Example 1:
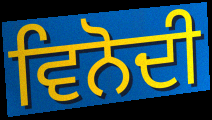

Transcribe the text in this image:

ਵਿਨੋਦੀ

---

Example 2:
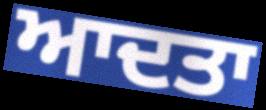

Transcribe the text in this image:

ਆਦਤਾ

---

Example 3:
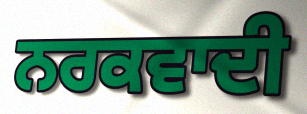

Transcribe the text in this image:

ਨਰਕਵਾਦੀ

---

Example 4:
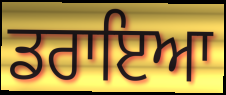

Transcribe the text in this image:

ਡਰਾਇਆ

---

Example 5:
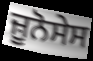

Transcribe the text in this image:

ਜ਼ੂਨੋਸੇਸ